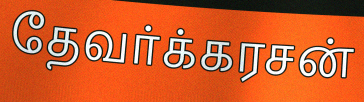
தேவர்க்கரசன்